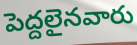
పెద్దలైనవారు